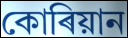
কোৰিয়ান